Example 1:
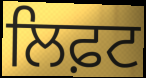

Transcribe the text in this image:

ਲਿਫ਼ਟ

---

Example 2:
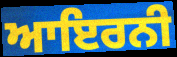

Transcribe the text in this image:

ਆਇਰਨੀ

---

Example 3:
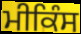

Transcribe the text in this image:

ਮੀਕਿੰਸ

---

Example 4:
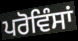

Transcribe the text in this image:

ਪਰੋਵਿੰਸਾਂ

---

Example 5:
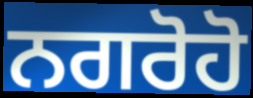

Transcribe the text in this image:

ਨਗਰੋਹੋ